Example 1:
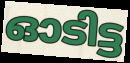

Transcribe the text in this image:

ഓടിട്ട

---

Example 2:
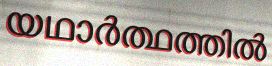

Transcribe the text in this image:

യഥാർത്ഥത്തിൽ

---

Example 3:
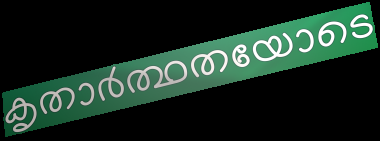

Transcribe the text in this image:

കൃതാർത്ഥതയോടെ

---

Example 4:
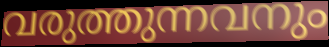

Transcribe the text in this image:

വരുത്തുന്നവനും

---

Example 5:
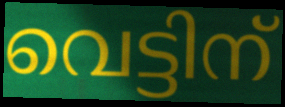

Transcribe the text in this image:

വെട്ടിന്